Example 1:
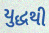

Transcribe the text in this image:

યુદ્ધથી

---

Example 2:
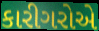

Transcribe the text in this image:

કારીગરોએ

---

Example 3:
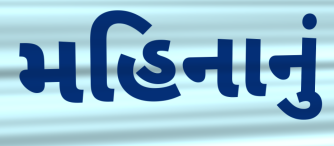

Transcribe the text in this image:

મહિનાનું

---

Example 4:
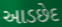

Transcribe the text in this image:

આડછેદ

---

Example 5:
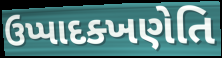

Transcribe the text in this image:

ઉપ્પાદક્ખણેતિ